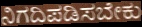
ನಿಗದಿಪಡಿಸಬೇಕು